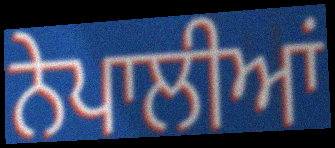
ਨੇਪਾਲੀਆਂ